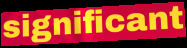
significant